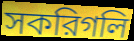
সকরিগলি